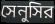
সেনুসির